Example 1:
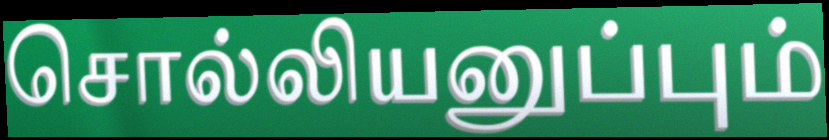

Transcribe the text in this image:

சொல்லியனுப்பும்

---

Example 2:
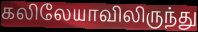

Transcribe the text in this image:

கலிலேயாவிலிருந்து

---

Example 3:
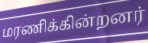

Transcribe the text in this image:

மரணிக்கின்றனர்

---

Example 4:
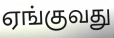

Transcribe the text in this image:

ஏங்குவது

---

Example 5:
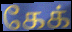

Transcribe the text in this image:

கேக்